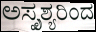
ಅಸ್ಪೃಶ್ಯರಿಂದ